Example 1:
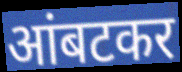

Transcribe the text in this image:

आंबटकर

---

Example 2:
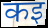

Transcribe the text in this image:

कइ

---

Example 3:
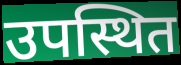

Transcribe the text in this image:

उपस्थित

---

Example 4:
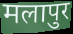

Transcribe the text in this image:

मलापुर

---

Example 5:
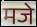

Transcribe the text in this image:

मजे